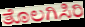
ತೊಲಗಿಸಿರಿ